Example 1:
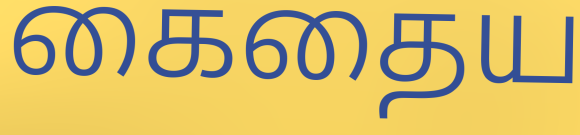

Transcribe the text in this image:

கைதைய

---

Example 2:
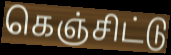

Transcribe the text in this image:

கெஞ்சிட்டு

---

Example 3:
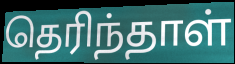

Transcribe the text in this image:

தெரிந்தாள்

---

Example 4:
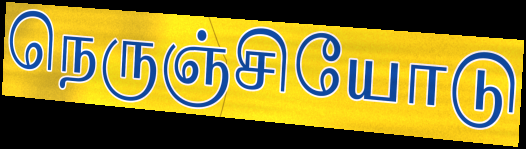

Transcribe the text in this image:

நெருஞ்சியோடு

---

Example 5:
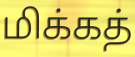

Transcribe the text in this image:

மிக்கத்